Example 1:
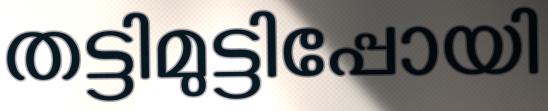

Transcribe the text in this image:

തട്ടിമുട്ടിപ്പോയി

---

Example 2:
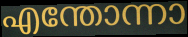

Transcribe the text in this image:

എന്തോന്നാ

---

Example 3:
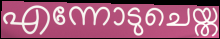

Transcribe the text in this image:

എന്നോടുചെയ്ത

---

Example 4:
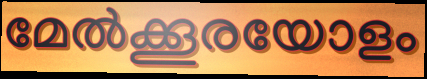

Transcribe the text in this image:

മേൽക്കൂരയോളം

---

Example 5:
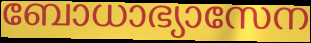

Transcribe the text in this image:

ബോധാഭ്യാസേന